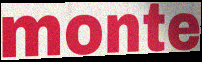
monte